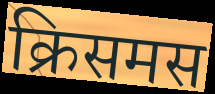
क्रिसमस